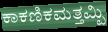
ಕಾಕಣಿಕಮತ್ತಮ್ಪಿ